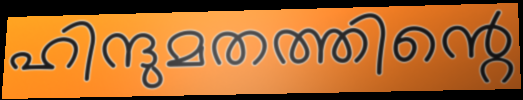
ഹിന്ദുമതത്തിന്റെ